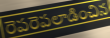
రెపరెపలాడించిన